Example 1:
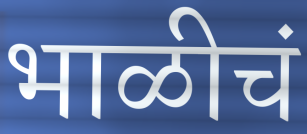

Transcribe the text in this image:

भाळीचं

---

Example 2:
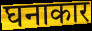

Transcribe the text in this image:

घनाकार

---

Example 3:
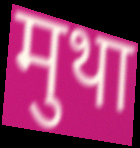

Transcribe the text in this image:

मुथा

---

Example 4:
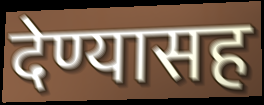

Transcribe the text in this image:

देण्यासह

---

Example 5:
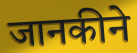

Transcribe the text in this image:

जानकीने